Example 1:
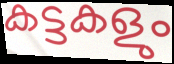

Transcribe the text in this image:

കട്ടകളും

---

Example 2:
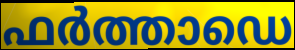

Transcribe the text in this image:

ഫർത്താഡെ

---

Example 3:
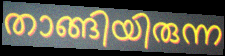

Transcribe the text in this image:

താങ്ങിയിരുന്ന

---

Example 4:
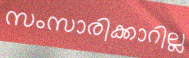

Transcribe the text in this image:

സംസാരിക്കാറില്ല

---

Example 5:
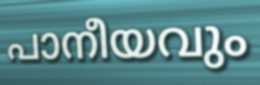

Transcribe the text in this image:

പാനീയവും